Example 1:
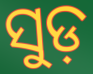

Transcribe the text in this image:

ସୁଡ଼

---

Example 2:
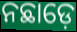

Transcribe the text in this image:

ନଛାଡ଼େ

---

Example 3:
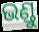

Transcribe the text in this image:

ଭଣ୍ଡୁ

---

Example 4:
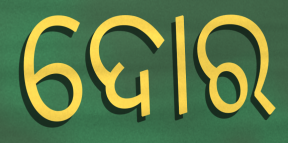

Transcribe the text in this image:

ଦୋର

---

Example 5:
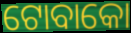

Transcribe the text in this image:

ଟୋବାକୋ